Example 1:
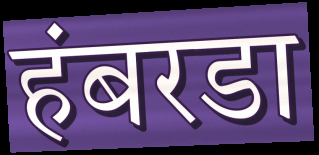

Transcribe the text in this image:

हंबरडा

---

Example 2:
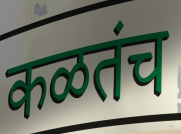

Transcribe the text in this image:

कळतंच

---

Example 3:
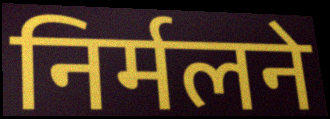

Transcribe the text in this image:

निर्मलने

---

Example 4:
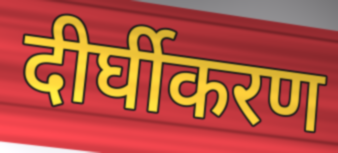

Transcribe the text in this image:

दीर्घीकरण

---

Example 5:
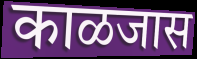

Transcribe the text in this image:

काळजास